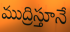
ముద్రిస్తూనే